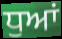
ਧੁਆਂ